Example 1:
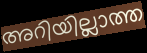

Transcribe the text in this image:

അറിയില്ലാത്ത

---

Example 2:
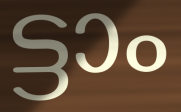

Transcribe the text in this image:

ട്ടാം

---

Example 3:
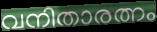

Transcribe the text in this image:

വനിതാരത്നം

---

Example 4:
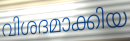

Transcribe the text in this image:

വിശദമാക്കിയ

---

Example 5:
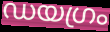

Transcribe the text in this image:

ഡയഗ്രം